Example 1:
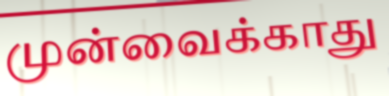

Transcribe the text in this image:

முன்வைக்காது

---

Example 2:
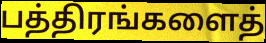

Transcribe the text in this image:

பத்திரங்களைத்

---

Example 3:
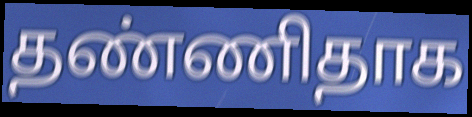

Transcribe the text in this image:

தண்ணிதாக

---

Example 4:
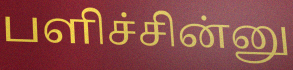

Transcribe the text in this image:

பளிச்சின்னு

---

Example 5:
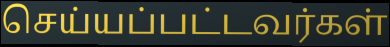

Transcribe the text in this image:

செய்யப்பட்டவர்கள்